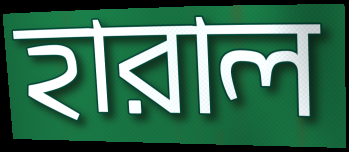
হারাল